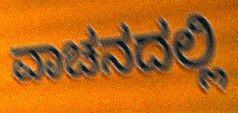
ವಾಚನದಲ್ಲಿ